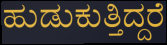
ಹುಡುಕುತ್ತಿದ್ದರೆ